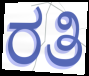
ರತಿ